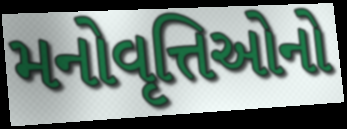
મનોવૃત્તિઓનો